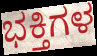
ಭಕ್ತಿಗಳ